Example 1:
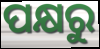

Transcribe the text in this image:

ପକ୍ଷରୁ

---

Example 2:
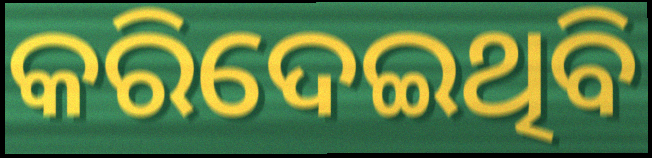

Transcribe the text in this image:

କରିଦେଇଥିବି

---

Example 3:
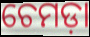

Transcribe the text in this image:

ଚେମଡ଼ା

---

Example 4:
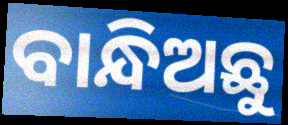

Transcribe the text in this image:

ବାନ୍ଧିଅଛୁ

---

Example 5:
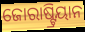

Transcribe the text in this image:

ଜୋରାଷ୍ଟ୍ରିୟାନ